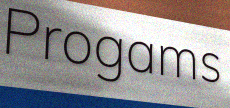
Progams